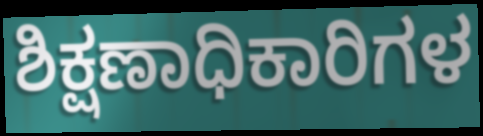
ಶಿಕ್ಷಣಾಧಿಕಾರಿಗಳ